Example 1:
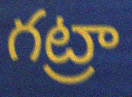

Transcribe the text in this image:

గట్రా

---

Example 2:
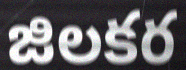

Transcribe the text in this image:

జిలకర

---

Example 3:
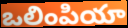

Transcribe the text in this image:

ఒలింపియా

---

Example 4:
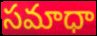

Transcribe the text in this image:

సమాధా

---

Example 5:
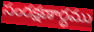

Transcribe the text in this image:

సంరక్షణార్ధము